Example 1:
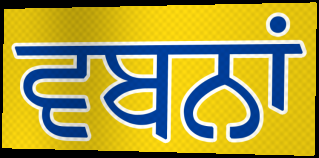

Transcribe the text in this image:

ਵਬਨਾਂ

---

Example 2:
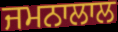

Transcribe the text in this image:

ਜਮਨਾਲਾਲ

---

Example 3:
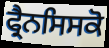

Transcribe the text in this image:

ਫ੍ਰੈਨਸਿਸਕੋ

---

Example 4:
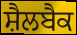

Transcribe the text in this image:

ਸ਼ੈਲਬੈਕ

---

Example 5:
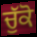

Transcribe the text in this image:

ਚੁੱਕੋ